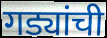
गड्यांची